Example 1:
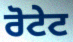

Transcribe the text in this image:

ਰੋਟੇਟ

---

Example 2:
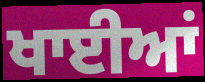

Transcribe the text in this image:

ਖਾਈਆਂ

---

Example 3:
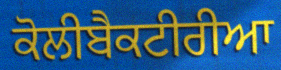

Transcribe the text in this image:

ਕੋਲੀਬੈਕਟੀਰੀਆ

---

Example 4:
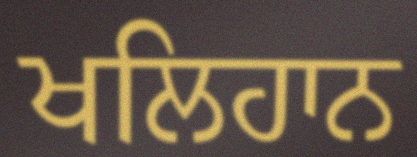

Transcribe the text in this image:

ਖਲਿਹਾਨ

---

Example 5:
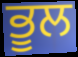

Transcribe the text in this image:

ਭੂਲ